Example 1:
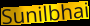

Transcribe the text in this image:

Sunilbhai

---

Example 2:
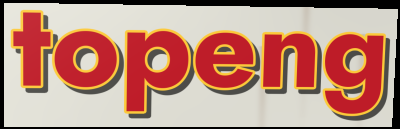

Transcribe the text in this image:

topeng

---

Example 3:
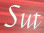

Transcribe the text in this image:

Sut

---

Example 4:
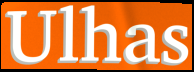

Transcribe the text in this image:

Ulhas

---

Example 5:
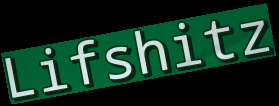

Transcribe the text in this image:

Lifshitz